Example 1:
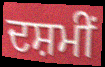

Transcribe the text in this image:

ਦਸ਼ਮੀਂ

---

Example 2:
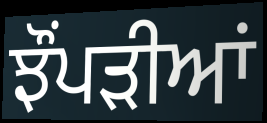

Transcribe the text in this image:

ਝੌਂਪੜੀਆਂ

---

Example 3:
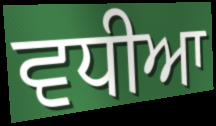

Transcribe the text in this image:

ਵਧੀਆ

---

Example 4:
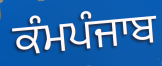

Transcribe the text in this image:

ਕੰਮਪੰਜਾਬ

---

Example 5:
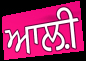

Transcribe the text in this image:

ਆਲ਼ੀ